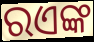
ରଏଙ୍କ